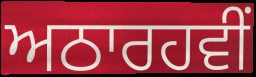
ਅਠਾਰਹਵੀਂ